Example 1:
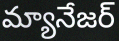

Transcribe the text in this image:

మ్యానేజర్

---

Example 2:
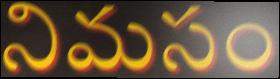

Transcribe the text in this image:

నిమసం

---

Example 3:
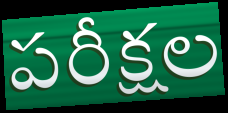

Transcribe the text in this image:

పరీక్షల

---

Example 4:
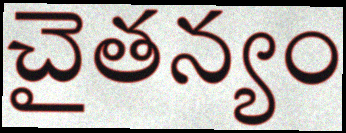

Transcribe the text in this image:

చైతన్యం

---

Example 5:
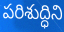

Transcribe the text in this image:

పరిశుద్ధిని